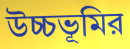
উচ্চভূমির